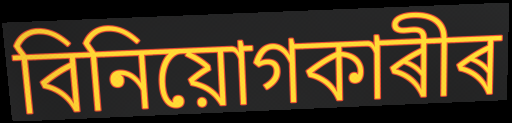
বিনিয়োগকাৰীৰ